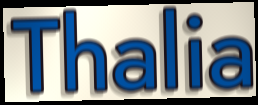
Thalia